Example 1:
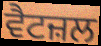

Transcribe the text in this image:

ਵੈਟਜ਼ਲ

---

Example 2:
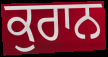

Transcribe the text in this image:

ਕੁਰਾਨ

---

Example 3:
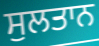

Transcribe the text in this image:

ਸੁਲਤਾਨ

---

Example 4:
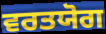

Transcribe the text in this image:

ਵਰਤਯੋਗ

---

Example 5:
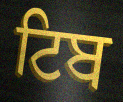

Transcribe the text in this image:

ਟਿਬ